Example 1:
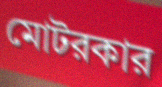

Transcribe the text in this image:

মোটরকার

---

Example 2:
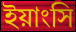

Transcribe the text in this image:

ইয়াংসি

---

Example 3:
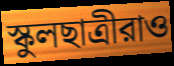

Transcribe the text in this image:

স্কুলছাত্রীরাও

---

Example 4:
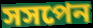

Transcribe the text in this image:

সসপেন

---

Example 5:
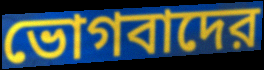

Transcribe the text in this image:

ভোগবাদের